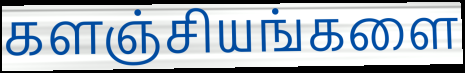
களஞ்சியங்களை